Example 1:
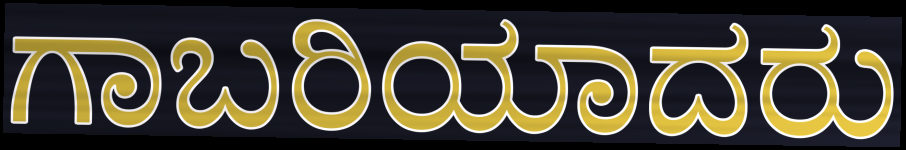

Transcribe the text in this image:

ಗಾಬರಿಯಾದರು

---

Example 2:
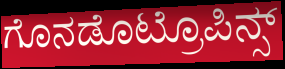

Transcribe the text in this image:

ಗೊನಡೊಟ್ರೊಪಿನ್ಸ್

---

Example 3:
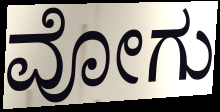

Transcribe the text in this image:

ವೋಗು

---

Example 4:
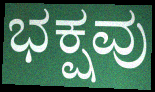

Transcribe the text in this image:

ಭಕ್ಷವು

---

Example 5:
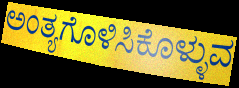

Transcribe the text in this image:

ಅಂತ್ಯಗೊಳಿಸಿಕೊಳ್ಳುವ